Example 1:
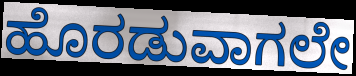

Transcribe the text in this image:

ಹೊರಡುವಾಗಲೇ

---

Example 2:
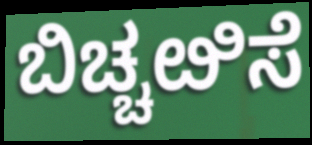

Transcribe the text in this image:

ಬಿಚ್ಚೞಿಸೆ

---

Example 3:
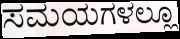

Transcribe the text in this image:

ಸಮಯಗಳಲ್ಲೂ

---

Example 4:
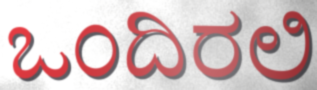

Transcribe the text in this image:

ಒಂದಿರಲಿ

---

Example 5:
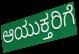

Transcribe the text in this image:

ಆಯುಕ್ತರಿಗೆ